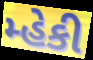
મ્હેકી